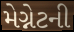
મેગ્નેટની